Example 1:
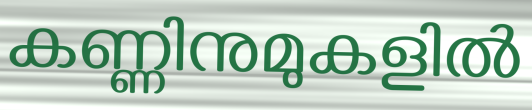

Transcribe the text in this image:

കണ്ണിനുമുകളിൽ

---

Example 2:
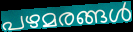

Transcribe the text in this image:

പഴമരങ്ങൾ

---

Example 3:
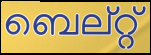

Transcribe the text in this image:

ബെല്റ്റ്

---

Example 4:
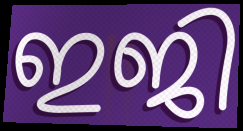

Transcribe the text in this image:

ഇജി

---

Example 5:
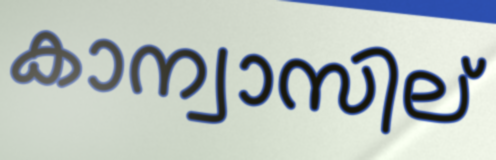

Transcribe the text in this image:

കാന്വാസില്